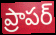
ప్రాపర్